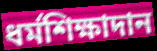
ধর্মশিক্ষাদান